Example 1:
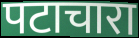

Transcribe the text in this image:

पटाचारा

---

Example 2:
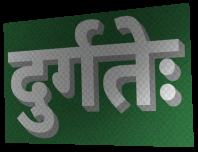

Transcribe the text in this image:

दुर्गतेः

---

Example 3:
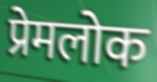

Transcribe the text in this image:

प्रेमलोक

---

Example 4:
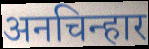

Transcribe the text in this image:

अनचिन्हार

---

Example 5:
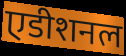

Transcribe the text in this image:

एडीशनल